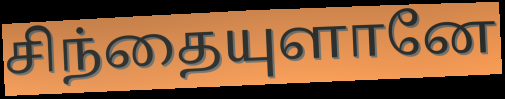
சிந்தையுளானே